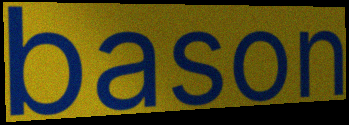
bason